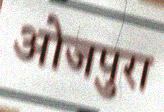
ओजपुरा